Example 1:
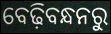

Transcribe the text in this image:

ବେଢ଼ିବନ୍ଧନରୁ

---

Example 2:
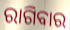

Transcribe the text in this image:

ରାଗିବାର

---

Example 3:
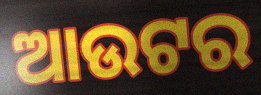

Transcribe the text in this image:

ଆଉଟର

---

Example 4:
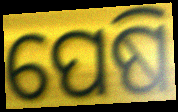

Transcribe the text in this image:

ପେଷି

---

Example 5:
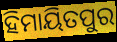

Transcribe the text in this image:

ହିମାୟିତପୁର